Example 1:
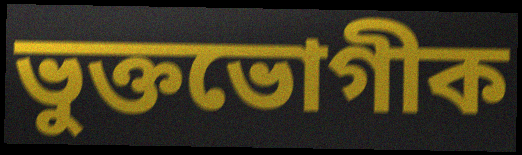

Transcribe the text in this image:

ভুক্তভোগীক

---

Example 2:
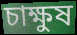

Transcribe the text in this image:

চাক্ষুষ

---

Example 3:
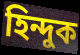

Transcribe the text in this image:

হিন্দুক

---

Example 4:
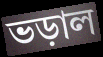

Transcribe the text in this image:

ভড়াল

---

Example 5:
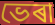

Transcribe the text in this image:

ভেৰা